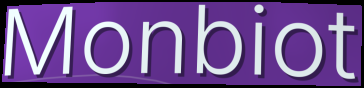
Monbiot